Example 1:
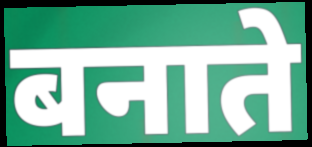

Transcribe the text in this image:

बनाते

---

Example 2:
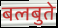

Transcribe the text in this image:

बलबुते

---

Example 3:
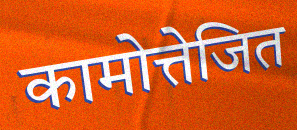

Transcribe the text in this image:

कामोत्तेजित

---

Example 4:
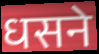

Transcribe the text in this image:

धसने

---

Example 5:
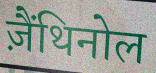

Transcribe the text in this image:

ज़ैंथिनोल